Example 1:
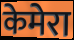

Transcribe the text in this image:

केमेरा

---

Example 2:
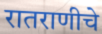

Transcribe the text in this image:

रातराणीचे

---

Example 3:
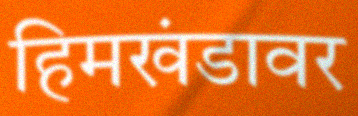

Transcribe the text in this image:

हिमखंडावर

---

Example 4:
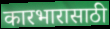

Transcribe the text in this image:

कारभारासाठी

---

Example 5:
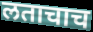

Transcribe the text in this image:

लताचाच